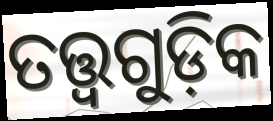
ତତ୍ତ୍ବଗୁଡ଼ିକ